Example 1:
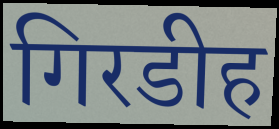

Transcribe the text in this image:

गिरडीह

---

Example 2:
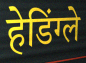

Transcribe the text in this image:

हेडिंग्‍ले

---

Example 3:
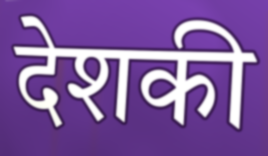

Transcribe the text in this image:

देशकी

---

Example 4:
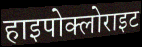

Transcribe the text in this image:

हाइपोक्लोराइट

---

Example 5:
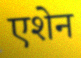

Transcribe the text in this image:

एशेन